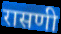
रासणी